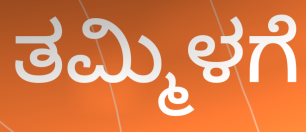
ತಮ್ಮಿಳಗೆ